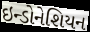
ઇન્ડોનેશિયન